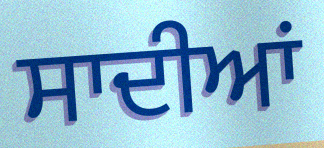
ਸਾਦੀਆਂ